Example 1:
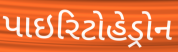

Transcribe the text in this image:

પાઇરિટોહેડ્રોન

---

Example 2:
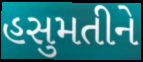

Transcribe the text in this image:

હસુમતીને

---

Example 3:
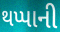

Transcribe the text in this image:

થપ્પાની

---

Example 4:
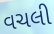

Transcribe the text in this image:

વચલી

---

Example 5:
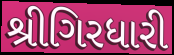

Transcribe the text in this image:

શ્રીગિરધારી